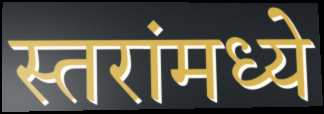
स्तरांमध्ये